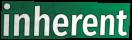
inherent